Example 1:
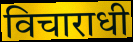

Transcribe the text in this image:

विचाराधी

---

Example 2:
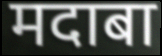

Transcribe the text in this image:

मदाबा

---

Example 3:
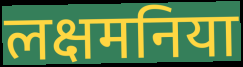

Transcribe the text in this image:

लक्षमनिया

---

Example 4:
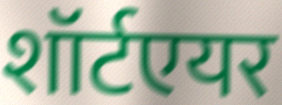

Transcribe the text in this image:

शॉर्टएयर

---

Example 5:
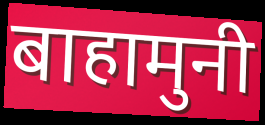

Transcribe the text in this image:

बाहामुनी